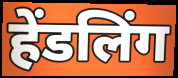
हेंडलिंग